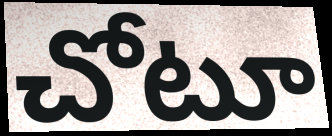
చోటూ